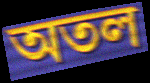
অতল